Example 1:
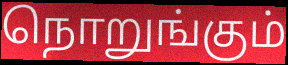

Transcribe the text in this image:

நொறுங்கும்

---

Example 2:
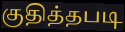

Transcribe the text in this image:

குதித்தபடி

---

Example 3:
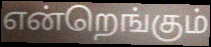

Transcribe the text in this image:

என்றெங்கும்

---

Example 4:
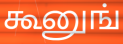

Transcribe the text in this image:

கூனுங்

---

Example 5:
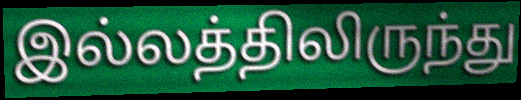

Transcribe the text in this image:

இல்லத்திலிருந்து